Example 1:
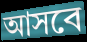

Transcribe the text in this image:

আসবে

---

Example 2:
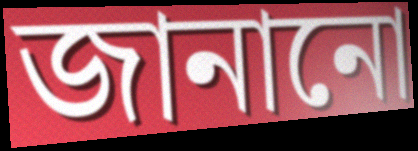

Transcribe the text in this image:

জানানো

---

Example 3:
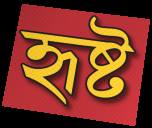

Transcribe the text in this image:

হৃষ্ট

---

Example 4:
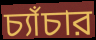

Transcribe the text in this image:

চ্যাঁচার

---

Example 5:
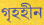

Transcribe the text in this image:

গৃহহীন